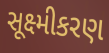
સૂક્ષ્મીકરણ